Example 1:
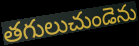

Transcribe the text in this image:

తగులుచుండెను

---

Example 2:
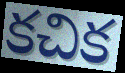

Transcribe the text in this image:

కచిక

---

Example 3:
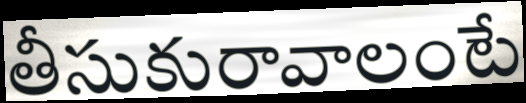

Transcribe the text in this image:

తీసుకురావాలంటే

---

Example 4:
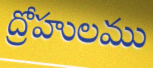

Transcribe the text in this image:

ద్రోహులము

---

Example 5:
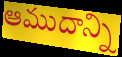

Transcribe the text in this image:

ఆముదాన్ని